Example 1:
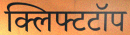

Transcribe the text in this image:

क्लिफ्टटॉप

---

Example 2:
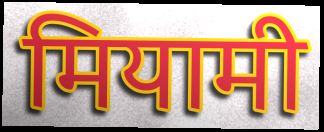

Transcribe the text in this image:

मियामी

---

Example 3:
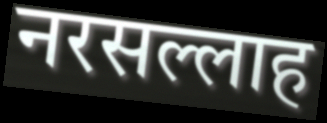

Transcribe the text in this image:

नरसल्लाह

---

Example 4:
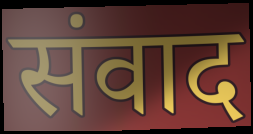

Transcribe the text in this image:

संवाद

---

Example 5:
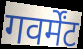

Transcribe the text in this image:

गवर्मेंट